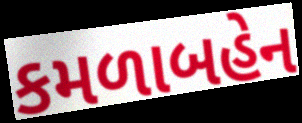
કમળાબહેન